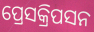
ପ୍ରେସକ୍ରିପସନ